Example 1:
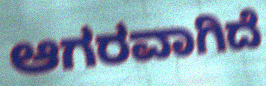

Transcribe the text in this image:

ಆಗರವಾಗಿದೆ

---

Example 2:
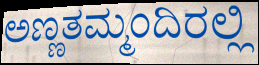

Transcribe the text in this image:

ಅಣ್ಣತಮ್ಮಂದಿರಲ್ಲಿ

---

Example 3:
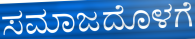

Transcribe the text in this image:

ಸಮಾಜದೊಳಗೆ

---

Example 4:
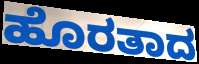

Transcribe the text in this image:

ಹೊರತಾದ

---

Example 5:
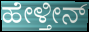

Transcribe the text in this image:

ಹೇಳ್ತೀನ್